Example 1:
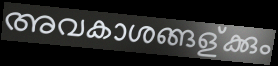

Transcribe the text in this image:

അവകാശങ്ങള്ക്കും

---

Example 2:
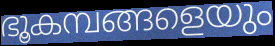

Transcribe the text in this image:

ഭൂകമ്പങ്ങളെയും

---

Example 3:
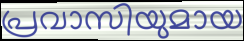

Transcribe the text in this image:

പ്രവാസിയുമായ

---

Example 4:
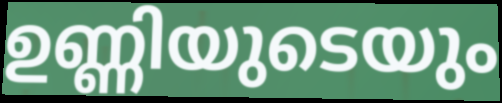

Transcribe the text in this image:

ഉണ്ണിയുടെയും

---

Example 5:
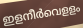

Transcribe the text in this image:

ഇളനീർവെളളം